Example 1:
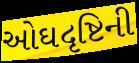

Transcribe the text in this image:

ઓઘદૃષ્ટિની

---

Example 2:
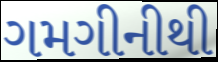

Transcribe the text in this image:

ગમગીનીથી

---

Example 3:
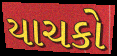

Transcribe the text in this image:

યાચકો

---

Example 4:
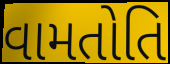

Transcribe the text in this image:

વામતોતિ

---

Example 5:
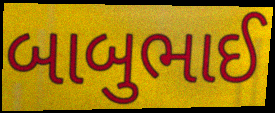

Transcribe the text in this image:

બાબુભાઈ